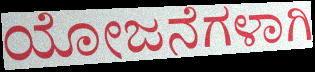
ಯೋಜನೆಗಳಾಗಿ